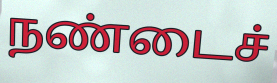
நண்டைச்